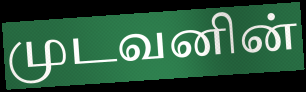
முடவனின்